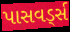
પાસવર્ડ્સ